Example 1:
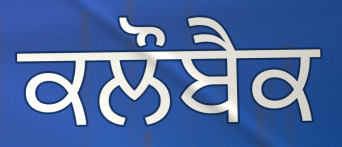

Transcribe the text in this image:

ਕਲੌਬੈਕ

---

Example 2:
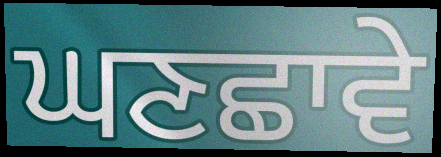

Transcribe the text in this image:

ਘਣਛਾਵੇ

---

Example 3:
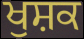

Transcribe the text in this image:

ਖੁਸ਼ਕ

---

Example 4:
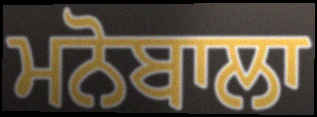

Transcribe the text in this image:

ਮਨੋਬਾਲਾ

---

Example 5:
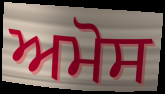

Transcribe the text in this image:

ਅਮੋਸ